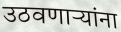
उठवणाऱ्यांना